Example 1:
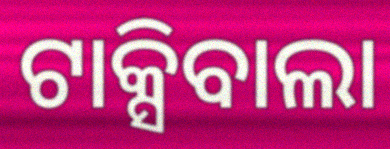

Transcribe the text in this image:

ଟାକ୍ସିବାଲା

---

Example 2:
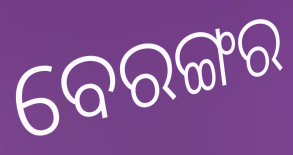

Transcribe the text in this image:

ବେରଙ୍ଗର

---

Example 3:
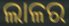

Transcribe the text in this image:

ଲାଳର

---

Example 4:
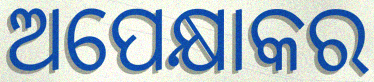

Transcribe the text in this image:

ଅପେକ୍ଷାକର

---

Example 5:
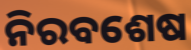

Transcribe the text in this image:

ନିରବଶେଷ